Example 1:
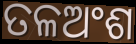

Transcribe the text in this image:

ତଳଅଂଶ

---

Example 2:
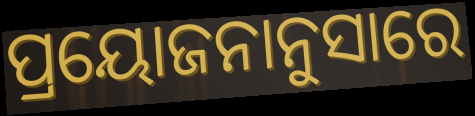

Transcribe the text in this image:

ପ୍ରୟୋଜନାନୁସାରେ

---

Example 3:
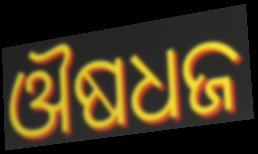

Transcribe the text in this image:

ଔଷଧଜ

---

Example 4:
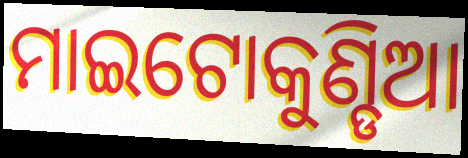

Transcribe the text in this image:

ମାଇଟୋକୁଣ୍ଡିଆ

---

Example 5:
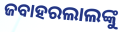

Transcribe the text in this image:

ଜବାହରଲାଲଙ୍କୁ